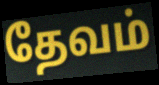
தேவம்